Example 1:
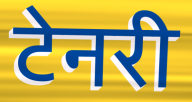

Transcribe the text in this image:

टेनरी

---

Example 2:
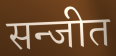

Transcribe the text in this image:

सन्जीत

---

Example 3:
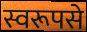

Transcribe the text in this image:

स्वरूपसे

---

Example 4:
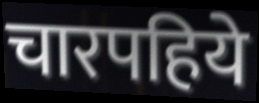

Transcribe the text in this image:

चारपहिये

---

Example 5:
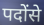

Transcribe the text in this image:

पदोंसे